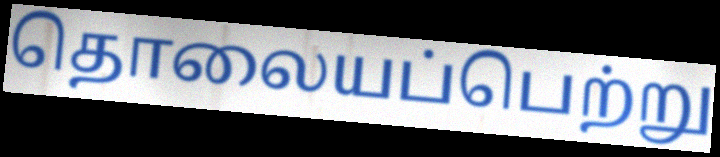
தொலையப்பெற்று